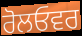
ਰੋਲਓਵਰ